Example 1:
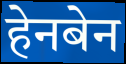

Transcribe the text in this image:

हेनबेन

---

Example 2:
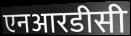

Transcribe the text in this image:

एनआरडीसी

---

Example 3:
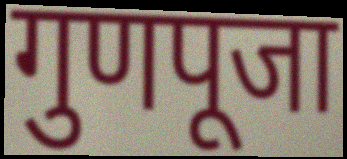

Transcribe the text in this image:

गुणपूजा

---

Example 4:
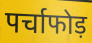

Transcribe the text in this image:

पर्चाफोड़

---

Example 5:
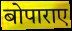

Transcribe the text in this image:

बोपाराए